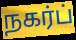
நகர்ப்